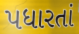
પધારતાં